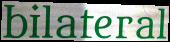
bilateral